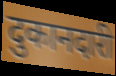
दुकानदारी